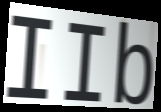
IIb